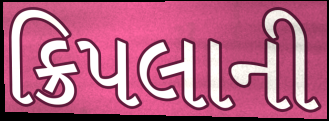
ક્રિપલાની